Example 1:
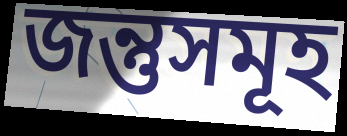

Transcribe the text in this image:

জন্তুসমূহ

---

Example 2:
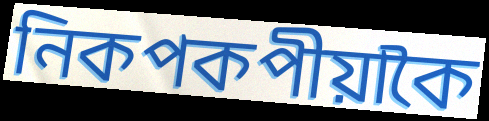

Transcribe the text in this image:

নিকপকপীয়াকৈ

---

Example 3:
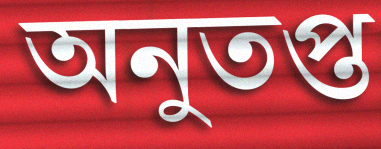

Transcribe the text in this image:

অনুতপ্ত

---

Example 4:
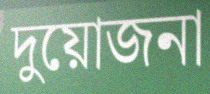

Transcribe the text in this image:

দুয়োজনা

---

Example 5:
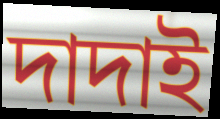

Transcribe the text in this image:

দাদাই